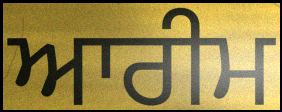
ਆਰੀਮ